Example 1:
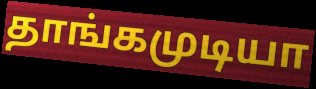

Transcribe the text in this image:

தாங்கமுடியா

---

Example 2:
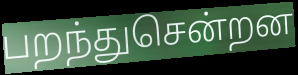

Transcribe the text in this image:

பறந்துசென்றன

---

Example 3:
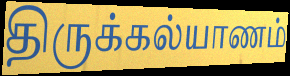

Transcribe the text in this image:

திருக்கல்யாணம்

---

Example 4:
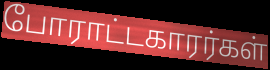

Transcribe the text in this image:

போராட்டகாரர்கள்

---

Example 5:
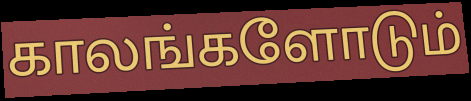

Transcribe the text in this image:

காலங்களோடும்